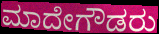
ಮಾದೇಗೌಡರು